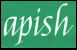
apish